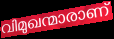
വിമുഖന്മാരാണ്